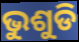
ଭୁଶୁଡି